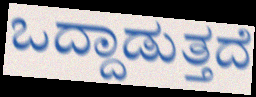
ಒದ್ದಾಡುತ್ತದೆ